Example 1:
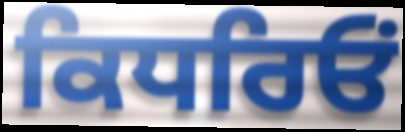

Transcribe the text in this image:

ਕਿਧਰਿਓਂ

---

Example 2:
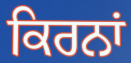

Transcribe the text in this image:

ਕਿਰਨਾਂ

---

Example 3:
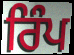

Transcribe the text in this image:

ਰਿੰਪ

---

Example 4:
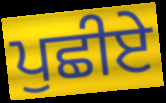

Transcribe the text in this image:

ਪੁਛੀਏ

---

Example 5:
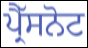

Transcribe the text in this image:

ਪ੍ਰੈੱਸਨੋਟ